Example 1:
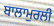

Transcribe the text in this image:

ਬਾਲਾਮੁਰਲੀ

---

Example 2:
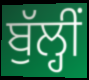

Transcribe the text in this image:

ਬੁੱਲ੍ਹੀਂ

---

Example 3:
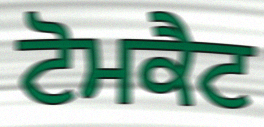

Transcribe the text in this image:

ਟੋਮਕੈਟ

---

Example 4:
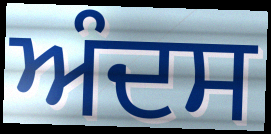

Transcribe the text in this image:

ਅੰਦਸ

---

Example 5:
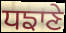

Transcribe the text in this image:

ਧਙਾਣੇ